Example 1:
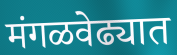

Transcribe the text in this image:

मंगळवेढ्यात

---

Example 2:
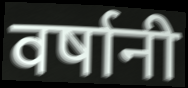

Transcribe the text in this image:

वर्षानी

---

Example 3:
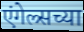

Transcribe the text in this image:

एंगेल्सच्या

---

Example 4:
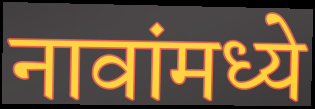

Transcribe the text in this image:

नावांमध्ये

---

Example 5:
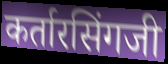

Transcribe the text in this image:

कर्तारसिंगजी